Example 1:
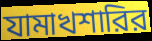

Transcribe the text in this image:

যামাখশারির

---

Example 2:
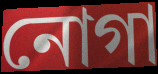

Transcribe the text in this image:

নোগা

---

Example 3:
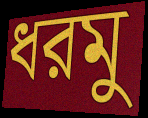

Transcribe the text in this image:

ধরমু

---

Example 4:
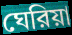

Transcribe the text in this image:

ঘেরিয়া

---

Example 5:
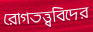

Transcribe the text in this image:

রোগতত্ত্ববিদের